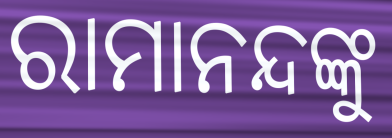
ରାମାନନ୍ଦଙ୍କୁ